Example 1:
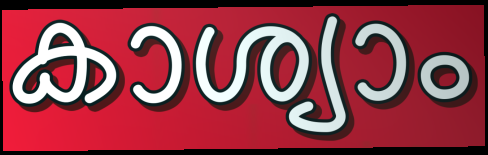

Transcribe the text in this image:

കാശ്യാം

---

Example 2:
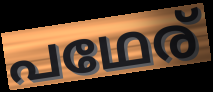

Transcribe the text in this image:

പഥേര്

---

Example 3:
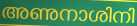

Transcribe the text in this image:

അണുനാശിനി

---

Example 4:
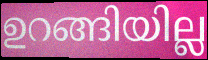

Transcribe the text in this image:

ഉറങ്ങിയില്ല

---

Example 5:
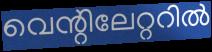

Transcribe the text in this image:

വെന്റിലേറ്ററിൽ